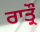
ਰਾਤ੍ਰੌ